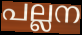
പല്ലന